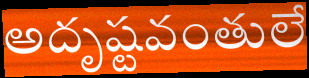
అదృష్టవంతులే